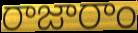
రాజారాం